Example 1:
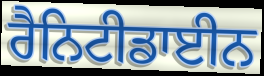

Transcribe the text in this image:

ਰੈਨਿਟੀਡਾਈਨ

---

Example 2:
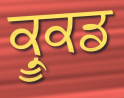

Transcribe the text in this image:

ਕ੍ਰੂਕਡ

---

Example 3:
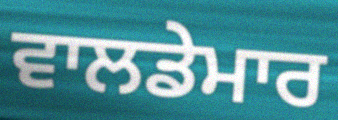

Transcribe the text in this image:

ਵਾਲਡੇਮਾਰ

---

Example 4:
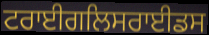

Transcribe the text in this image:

ਟਰਾਈਗਲਿਸਰਾਈਡਸ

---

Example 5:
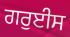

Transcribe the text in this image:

ਗਰੁਈਸ